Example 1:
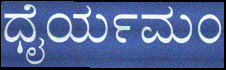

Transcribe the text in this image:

ಧೈರ್ಯಮಂ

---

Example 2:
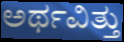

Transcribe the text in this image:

ಅರ್ಥವಿತ್ತು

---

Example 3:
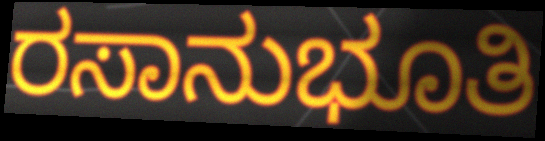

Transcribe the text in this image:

ರಸಾನುಭೂತಿ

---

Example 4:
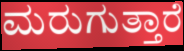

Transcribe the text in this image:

ಮರುಗುತ್ತಾರೆ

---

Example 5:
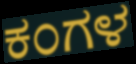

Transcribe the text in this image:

ಕಂಗಳ